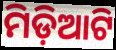
ମିଡ଼ିଆଟି